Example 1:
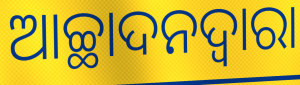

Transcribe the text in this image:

ଆଚ୍ଛାଦନଦ୍ୱାରା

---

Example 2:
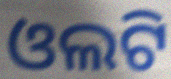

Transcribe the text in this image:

ଓଲଟି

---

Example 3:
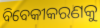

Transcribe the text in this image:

ବିବେକୀକରଣକୁ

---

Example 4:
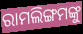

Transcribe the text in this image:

ରାମଲିଙ୍ଗମଙ୍କୁ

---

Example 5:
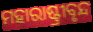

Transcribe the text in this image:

ମହାରାଷ୍ଟ୍ରୀବୃନ୍ଦ